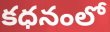
కధనంలో